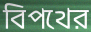
বিপথের